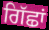
ਗਿੱਛਾਂ